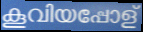
കൂവിയപ്പോള്